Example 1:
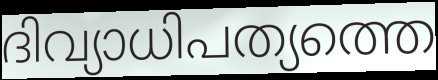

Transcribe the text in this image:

ദിവ്യാധിപത്യത്തെ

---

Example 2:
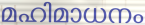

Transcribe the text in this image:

മഹിമാധനം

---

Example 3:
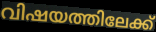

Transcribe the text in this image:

വിഷയത്തിലേക്ക്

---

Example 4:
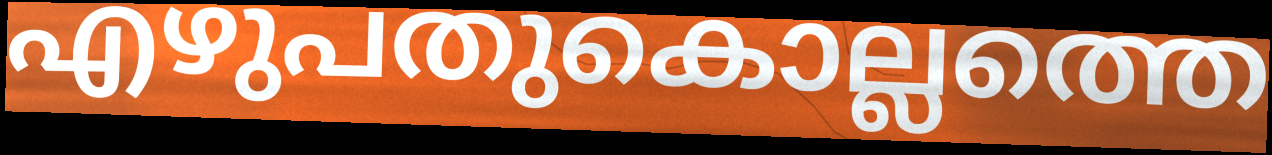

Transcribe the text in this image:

എഴുപതുകൊല്ലത്തെ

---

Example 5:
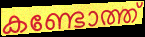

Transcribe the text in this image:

കണ്ടോത്ത്